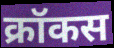
क्रॉकस